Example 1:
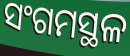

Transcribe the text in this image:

ସଂଗମସ୍ଥଳ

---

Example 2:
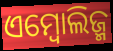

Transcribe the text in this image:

ଏମ୍ବୋଲିଜ୍ମ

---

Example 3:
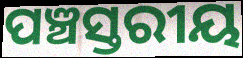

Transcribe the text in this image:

ପଞ୍ଚସ୍ତରୀୟ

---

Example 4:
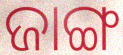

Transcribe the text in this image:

ଜାଙ୍ଗ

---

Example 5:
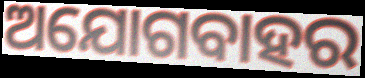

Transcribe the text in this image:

ଅଯୋଗବାହର